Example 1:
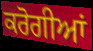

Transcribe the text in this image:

ਕਰੋਗੀਆਂ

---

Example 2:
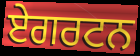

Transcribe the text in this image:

ਏਗਰਟਨ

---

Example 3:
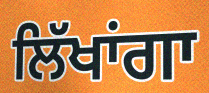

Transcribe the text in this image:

ਲਿੱਖਾਂਗਾ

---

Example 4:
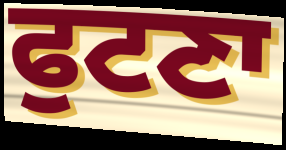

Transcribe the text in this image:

ਫੁਟਣਾ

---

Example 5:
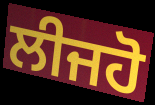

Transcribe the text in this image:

ਲੀਜਹੋ